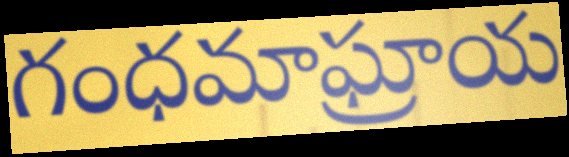
గంధమాఘ్రాయ